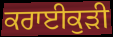
ਕਰਾਈਕੁੜੀ